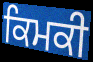
ਕਿਮਕੀ